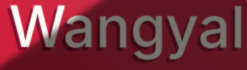
Wangyal